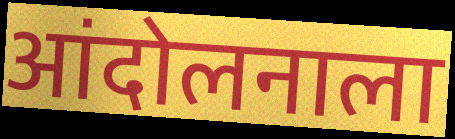
आंदोलनाला